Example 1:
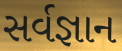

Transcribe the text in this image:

સર્વજ્ઞાન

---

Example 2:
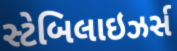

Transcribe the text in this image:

સ્ટેબિલાઇઝર્સ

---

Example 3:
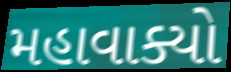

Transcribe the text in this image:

મહાવાક્યો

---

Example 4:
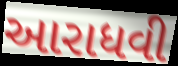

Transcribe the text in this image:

આરાધવી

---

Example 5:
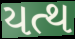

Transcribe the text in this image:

યત્થ